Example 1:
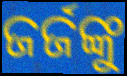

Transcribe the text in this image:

ଜର୍ଜଙ୍କୁ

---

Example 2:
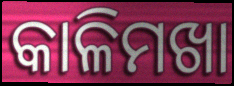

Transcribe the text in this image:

କାଳିମଖା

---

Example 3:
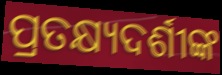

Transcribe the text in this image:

ପ୍ରତକ୍ଷ୍ୟଦର୍ଶୀଙ୍କ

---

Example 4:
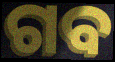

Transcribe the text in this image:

ଗବ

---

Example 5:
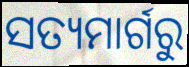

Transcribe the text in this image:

ସତ୍ୟମାର୍ଗରୁ